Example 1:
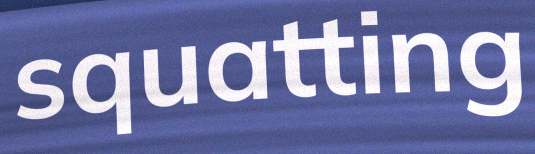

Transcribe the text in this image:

squatting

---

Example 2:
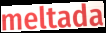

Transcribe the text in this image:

meltada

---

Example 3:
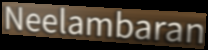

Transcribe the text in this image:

Neelambaran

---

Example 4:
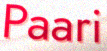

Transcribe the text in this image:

Paari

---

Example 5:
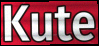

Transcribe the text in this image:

Kute